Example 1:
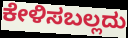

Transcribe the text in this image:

ಕೇಳಿಸಬಲ್ಲದು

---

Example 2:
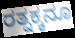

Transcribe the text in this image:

ರತ್ನಕ್ಕನೂ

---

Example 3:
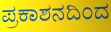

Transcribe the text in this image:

ಪ್ರಕಾಶನದಿಂದ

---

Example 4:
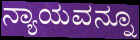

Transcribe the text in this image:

ನ್ಯಾಯವನ್ನೂ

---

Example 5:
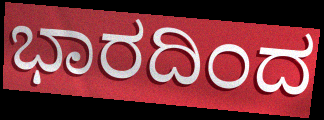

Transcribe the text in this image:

ಭಾರದಿಂದ